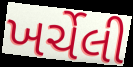
ખર્ચેલી